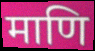
माणि